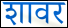
शावर